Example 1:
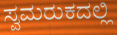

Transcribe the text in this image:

ಸ್ವಮರುಕದಲ್ಲಿ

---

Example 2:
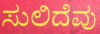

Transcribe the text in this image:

ಸುಲಿದೆವು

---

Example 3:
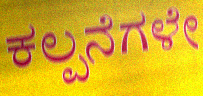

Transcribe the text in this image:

ಕಲ್ಪನೆಗಳೇ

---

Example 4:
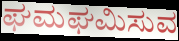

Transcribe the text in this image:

ಘಮಘಮಿಸುವ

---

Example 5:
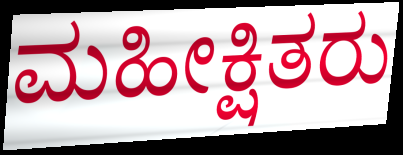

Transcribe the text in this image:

ಮಹೀಕ್ಷಿತರು